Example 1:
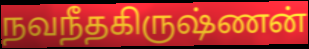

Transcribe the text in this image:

நவநீதகிருஷ்ணன்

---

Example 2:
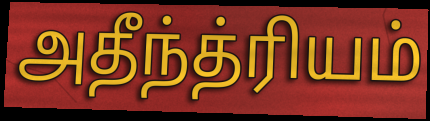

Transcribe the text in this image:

அதீந்த்ரியம்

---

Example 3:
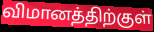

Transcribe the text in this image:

விமானத்திற்குள்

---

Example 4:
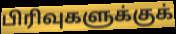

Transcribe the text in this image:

பிரிவுகளுக்குக்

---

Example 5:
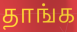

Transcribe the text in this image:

தாங்க